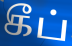
கீப்